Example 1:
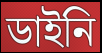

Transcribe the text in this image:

ডাইনি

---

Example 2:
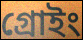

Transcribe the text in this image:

গ্রোইং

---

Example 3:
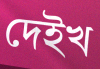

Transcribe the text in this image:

দেইখ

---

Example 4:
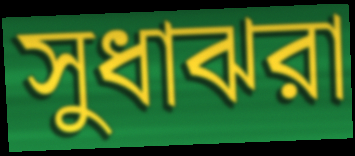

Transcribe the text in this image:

সুধাঝরা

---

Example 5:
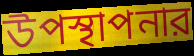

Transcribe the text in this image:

উপস্থাপনার